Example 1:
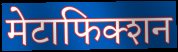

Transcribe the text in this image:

मेटाफिक्शन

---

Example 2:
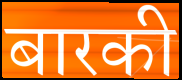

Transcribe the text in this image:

बारकी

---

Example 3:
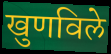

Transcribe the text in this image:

खुणविले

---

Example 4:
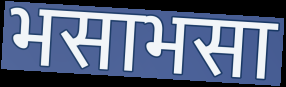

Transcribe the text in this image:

भसाभसा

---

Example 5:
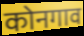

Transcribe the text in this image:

कोनगाव